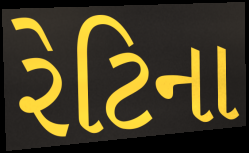
રેટિના